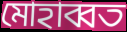
মোহাব্বত